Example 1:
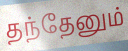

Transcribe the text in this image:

தந்தேனும்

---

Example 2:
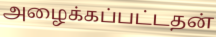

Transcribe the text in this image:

அழைக்கப்பட்டதன்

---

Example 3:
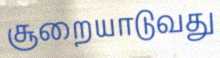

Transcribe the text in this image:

சூறையாடுவது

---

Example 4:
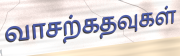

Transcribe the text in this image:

வாசற்கதவுகள்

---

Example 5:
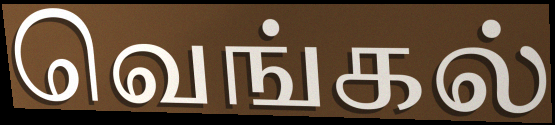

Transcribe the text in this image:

வெங்கல்